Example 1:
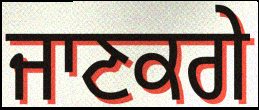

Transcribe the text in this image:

ਜਾਣਕਗੇ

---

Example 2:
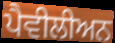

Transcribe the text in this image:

ਪੈਵੀਲੀਅਨ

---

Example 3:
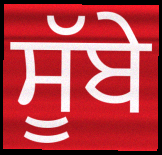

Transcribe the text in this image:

ਸੂੱਬੇ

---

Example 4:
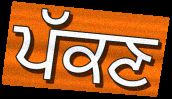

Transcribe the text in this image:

ਪੱਕਣ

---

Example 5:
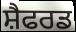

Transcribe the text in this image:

ਸ਼ੈਫਰਡ